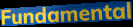
Fundamental